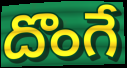
దొంగే